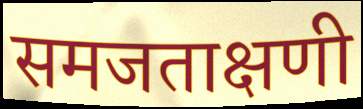
समजताक्षणी